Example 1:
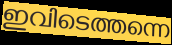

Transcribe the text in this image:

ഇവിടെത്തന്നെ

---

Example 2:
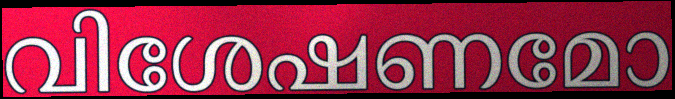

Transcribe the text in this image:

വിശേഷണമോ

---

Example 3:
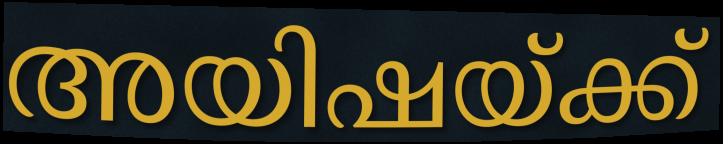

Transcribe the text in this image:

അയിഷയ്ക്ക്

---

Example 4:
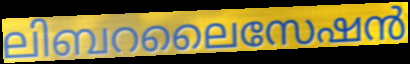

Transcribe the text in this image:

ലിബറലൈസേഷൻ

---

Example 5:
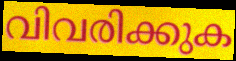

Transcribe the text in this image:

വിവരിക്കുക